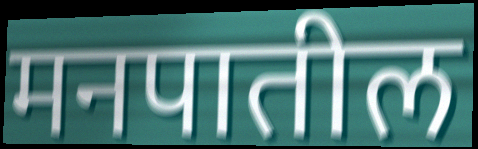
मनपातील